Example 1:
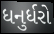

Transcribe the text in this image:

ધનુર્ધરો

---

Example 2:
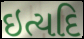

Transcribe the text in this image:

ઇત્યદિ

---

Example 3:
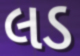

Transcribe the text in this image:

લડ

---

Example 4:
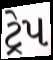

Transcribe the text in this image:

ટ્રેપ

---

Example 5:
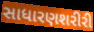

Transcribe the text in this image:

સાધારણશરીરી